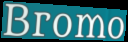
Bromo